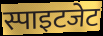
स्पाइटजेट